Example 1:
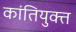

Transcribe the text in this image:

कांतियुक्त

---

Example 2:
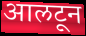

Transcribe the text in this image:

आलटून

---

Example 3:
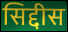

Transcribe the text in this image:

सिद्दीस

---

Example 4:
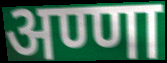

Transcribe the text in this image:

अण्णा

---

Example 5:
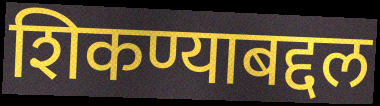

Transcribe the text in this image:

शिकण्याबद्दल